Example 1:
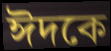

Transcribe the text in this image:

ঈদকে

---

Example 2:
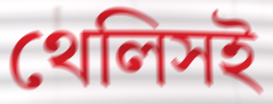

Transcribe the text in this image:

থেলিসই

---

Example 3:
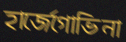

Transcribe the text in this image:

হার্জেগোভিনা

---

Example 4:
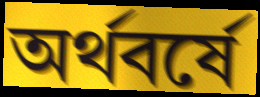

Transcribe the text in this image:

অর্থবর্ষে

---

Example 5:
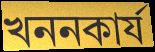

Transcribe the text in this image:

খননকার্য